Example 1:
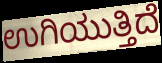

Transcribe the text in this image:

ಉಗಿಯುತ್ತಿದೆ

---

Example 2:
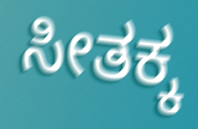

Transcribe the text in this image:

ಸೀತಕ್ಕ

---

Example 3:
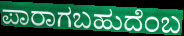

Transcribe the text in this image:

ಪಾರಾಗಬಹುದೆಂಬ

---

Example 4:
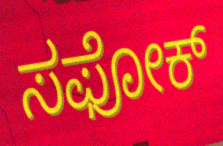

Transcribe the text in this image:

ಸಫೋಕ್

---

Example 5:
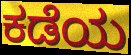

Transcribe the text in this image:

ಕಡೆಯ